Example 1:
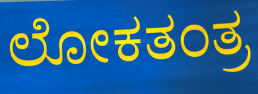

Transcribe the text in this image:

ಲೋಕತಂತ್ರ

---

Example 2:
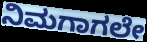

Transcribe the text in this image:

ನಿಮಗಾಗಲೇ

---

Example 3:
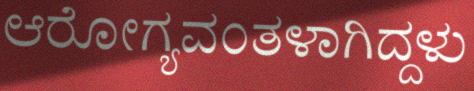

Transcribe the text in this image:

ಆರೋಗ್ಯವಂತಳಾಗಿದ್ದಳು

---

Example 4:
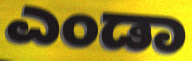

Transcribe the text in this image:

ಎಂಡಾ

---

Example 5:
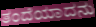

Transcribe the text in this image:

ತಂದೆಯಾದನು